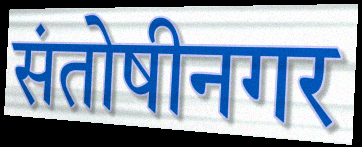
संतोषीनगर